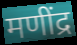
मणींद्र